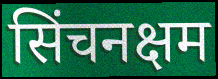
सिंचनक्षम